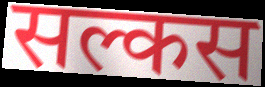
सल्कस